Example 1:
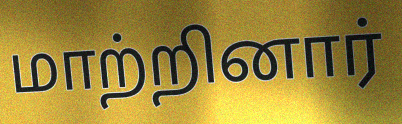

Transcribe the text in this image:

மாற்றினார்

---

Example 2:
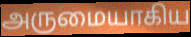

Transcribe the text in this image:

அருமையாகிய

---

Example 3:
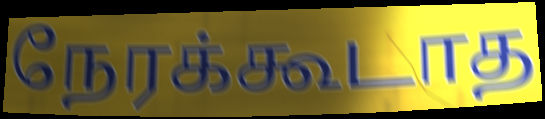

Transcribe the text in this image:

நேரக்கூடாத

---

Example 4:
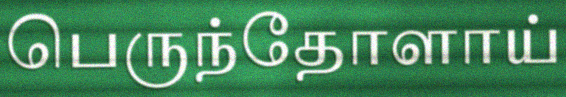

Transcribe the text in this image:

பெருந்தோளாய்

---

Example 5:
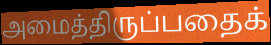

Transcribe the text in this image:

அமைத்திருப்பதைக்